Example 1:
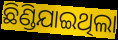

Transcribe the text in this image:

ଛିଣ୍ଡିଯାଇଥିଲା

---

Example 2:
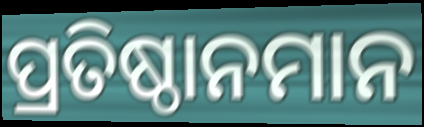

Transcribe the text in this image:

ପ୍ରତିଷ୍ଠାନମାନ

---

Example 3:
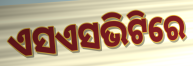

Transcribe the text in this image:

ଏସଏସଭିଟିରେ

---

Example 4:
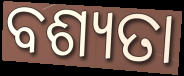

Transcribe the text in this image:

ବଶ୍ୟତା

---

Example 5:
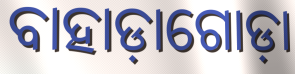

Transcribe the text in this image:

ବାହାଡ଼ାଗୋଡ଼ା